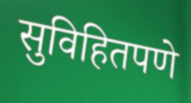
सुविहितपणे